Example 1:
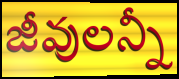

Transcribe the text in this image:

జీవులన్నీ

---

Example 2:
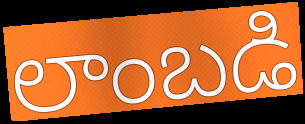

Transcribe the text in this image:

లాంబడి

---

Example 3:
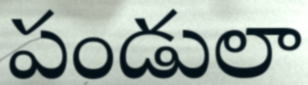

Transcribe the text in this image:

పండులా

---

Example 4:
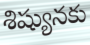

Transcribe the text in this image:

శిష్యునకు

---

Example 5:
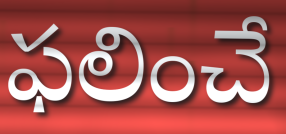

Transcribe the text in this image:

ఫలించే